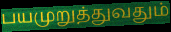
பயமுறுத்துவதும்